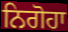
ਨਿਗੋਹਾ